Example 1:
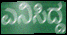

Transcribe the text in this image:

ಎನಿಸಿದ್ದ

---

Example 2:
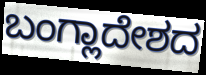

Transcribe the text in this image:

ಬಂಗ್ಲಾದೇಶದ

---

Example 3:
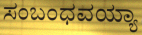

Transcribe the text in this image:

ಸಂಬಂಧವಯ್ಯಾ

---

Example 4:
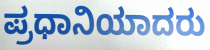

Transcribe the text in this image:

ಪ್ರಧಾನಿಯಾದರು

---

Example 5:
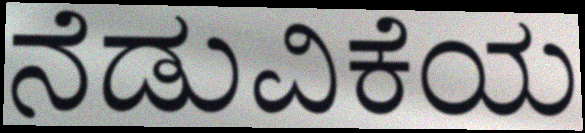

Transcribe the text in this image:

ನೆಡುವಿಕೆಯ